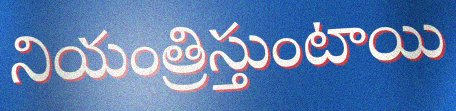
నియంత్రిస్తుంటాయి